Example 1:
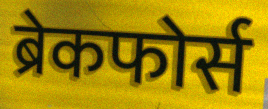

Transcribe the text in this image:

ब्रेकफोर्स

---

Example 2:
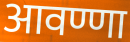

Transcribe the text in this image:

आवण्णा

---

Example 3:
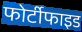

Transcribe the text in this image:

फोर्टीफाइड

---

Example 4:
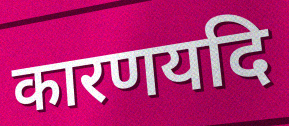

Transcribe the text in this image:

कारणयदि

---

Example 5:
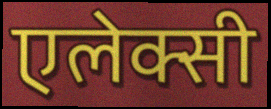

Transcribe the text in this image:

एलेक्सी